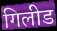
गिलीड